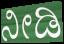
ನೀಡಿ